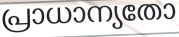
പ്രാധാന്യതോ